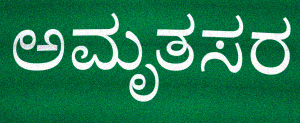
ಅಮೃತಸರ